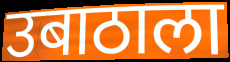
उबाठाला